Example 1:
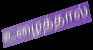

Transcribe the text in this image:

உழைத்தால்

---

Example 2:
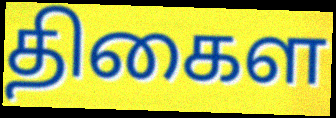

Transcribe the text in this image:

திகைள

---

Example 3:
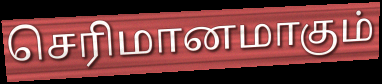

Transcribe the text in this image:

செரிமானமாகும்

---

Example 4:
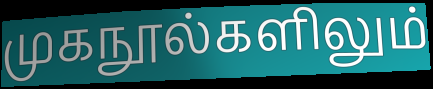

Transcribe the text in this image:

முகநூல்களிலும்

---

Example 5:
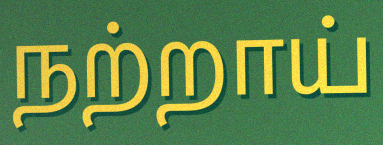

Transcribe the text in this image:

நற்றாய்